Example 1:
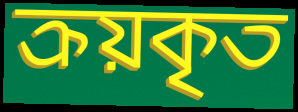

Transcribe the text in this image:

ক্রয়কৃত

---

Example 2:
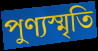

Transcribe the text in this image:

পুণ্যস্মৃতি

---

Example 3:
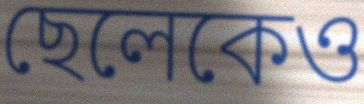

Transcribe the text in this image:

ছেলেকেও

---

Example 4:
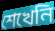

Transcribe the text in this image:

শেখেনি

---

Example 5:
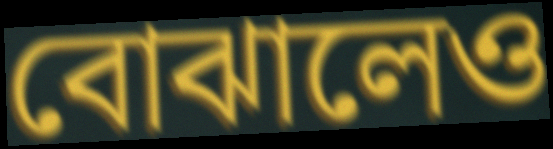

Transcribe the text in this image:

বোঝালেও